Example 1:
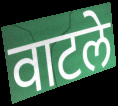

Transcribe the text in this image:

वाटले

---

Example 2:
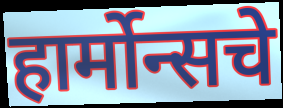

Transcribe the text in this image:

हार्मोन्सचे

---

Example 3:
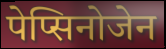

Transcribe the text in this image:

पेप्सिनोजेन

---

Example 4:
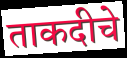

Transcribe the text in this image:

ताकदीचे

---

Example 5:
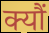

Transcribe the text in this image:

क्यौं